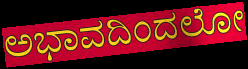
ಅಭಾವದಿಂದಲೋ